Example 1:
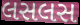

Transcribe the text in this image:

લસલસ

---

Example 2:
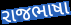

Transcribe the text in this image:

રાજભાષા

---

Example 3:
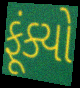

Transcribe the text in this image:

ફૂંક્યો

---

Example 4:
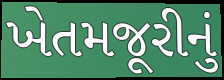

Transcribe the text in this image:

ખેતમજૂરીનું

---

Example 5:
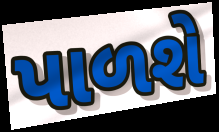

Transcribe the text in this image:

પાળશે